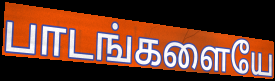
பாடங்களையே